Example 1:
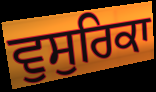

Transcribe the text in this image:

ਵੁਸੁਰਿਕਾ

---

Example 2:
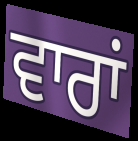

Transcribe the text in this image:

ਵਾਰਾਂ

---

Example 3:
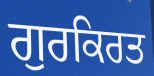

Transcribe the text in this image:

ਗੁਰਕਿਰਤ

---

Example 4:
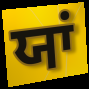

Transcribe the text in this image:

ਯਾਂ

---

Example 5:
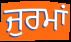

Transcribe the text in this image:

ਜੁਰਮਾਂ